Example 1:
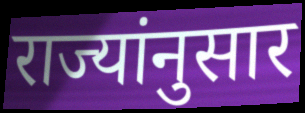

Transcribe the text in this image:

राज्यांनुसार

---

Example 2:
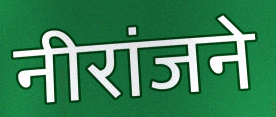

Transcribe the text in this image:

नीरांजने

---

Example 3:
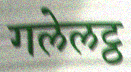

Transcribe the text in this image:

गलेलट्ठ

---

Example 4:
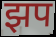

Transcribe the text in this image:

झप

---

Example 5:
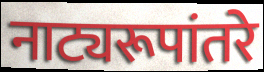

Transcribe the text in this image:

नाट्यरूपांतरे